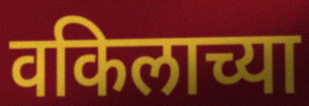
वकिलाच्या